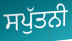
ਸਪੁੱਤਨੀ